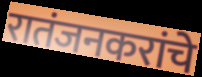
रातंजनकरांचे